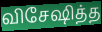
விசேஷித்த